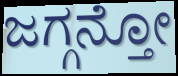
ಜಗ್ಗನ್ತೋ